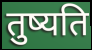
तुष्यति